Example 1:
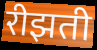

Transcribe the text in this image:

रीझती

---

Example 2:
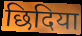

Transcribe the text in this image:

छिदिया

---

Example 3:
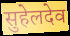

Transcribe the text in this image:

सुहेलदेव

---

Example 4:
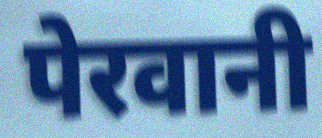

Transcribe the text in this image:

पेरवानी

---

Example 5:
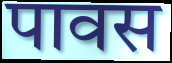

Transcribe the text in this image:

पावस